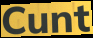
Cunt